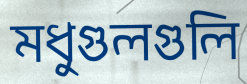
মধুগুলগুলি